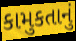
કામુકતાનું